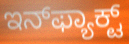
ಇನ್‌ಫ್ಯಾಕ್ಟ್